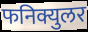
फनिक्युलर